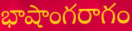
భాషాంగరాగం